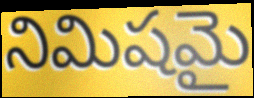
నిమిషమై